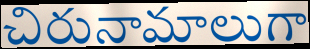
చిరునామాలుగా